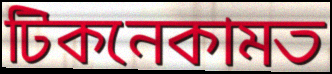
টিকনেকামত